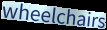
wheelchairs